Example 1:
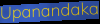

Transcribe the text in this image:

Upanandaka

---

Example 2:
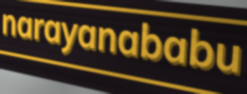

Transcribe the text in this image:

narayanababu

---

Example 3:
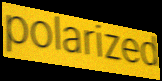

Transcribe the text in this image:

polarized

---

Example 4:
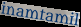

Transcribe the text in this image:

inamtamil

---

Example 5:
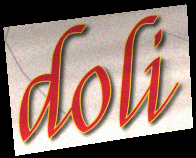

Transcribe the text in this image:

doli